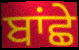
ਬਾਂਛੇ